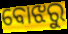
ବୋଝରୁ